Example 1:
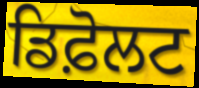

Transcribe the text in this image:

ਡਿਫ਼ੋਲਟ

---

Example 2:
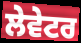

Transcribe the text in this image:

ਲੇਵੇਟਰ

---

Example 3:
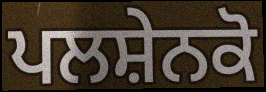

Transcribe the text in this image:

ਪਲਸ਼ੇਨਕੋ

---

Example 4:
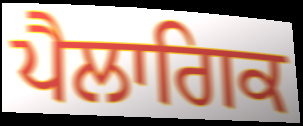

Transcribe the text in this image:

ਪੈਲਾਗਿਕ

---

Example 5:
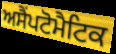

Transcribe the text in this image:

ਅਸੈਂਪਟੋਮੈਟਿਕ